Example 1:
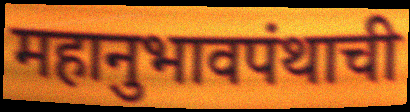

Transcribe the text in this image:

महानुभावपंथाची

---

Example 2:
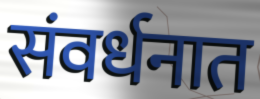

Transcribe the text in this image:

संवर्धनात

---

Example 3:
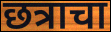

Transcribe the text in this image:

छत्राचा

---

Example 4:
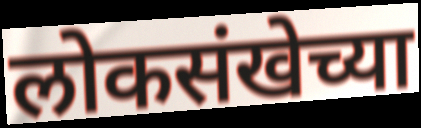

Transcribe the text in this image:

लोकसंखेच्या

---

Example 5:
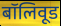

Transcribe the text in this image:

बॉलिवूड